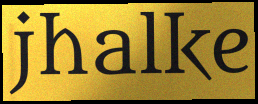
jhalke